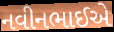
નવીનભાઈએ